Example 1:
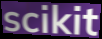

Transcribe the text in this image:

scikit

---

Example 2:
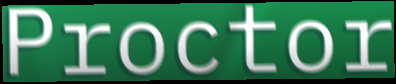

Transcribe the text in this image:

Proctor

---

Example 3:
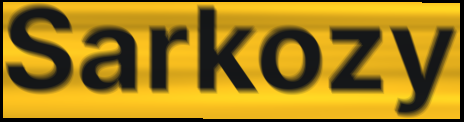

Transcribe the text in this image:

Sarkozy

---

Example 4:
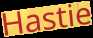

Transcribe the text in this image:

Hastie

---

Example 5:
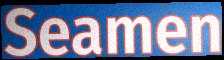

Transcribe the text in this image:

Seamen